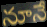
నూనే